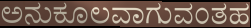
ಅನುಕೂಲವಾಗುವಂತಹ